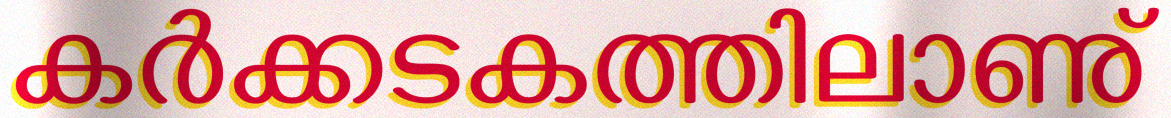
കർക്കടകത്തിലാണു്